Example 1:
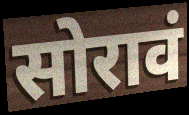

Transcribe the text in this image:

सोरावं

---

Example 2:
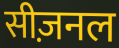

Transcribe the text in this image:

सीज़नल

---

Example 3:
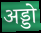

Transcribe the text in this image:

अड्डो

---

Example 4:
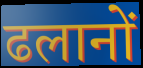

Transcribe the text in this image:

ढलानों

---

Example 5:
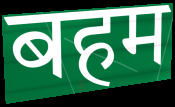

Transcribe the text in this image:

बहम